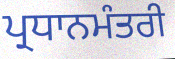
ਪ੍ਰਧਾਨਮੰਤਰੀ